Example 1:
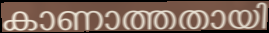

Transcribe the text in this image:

കാണാത്തതായി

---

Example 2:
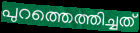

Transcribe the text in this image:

പുറത്തെത്തിച്ചത്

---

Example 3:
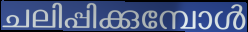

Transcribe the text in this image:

ചലിപ്പിക്കുമ്പോൾ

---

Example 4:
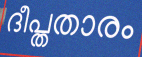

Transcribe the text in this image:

ദീപ്തതാരം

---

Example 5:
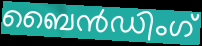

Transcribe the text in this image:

ബൈൻഡിംഗ്